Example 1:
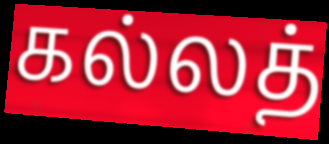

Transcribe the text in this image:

கல்லத்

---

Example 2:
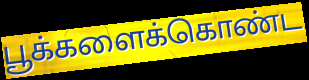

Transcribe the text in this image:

பூக்களைக்கொண்ட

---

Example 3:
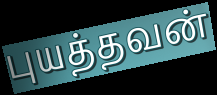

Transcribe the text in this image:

புயத்தவன்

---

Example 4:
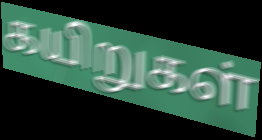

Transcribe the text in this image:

கயிறுகள்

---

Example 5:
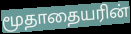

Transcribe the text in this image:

மூதாதையரின்